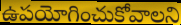
ఉపయోగించుకోవాలని